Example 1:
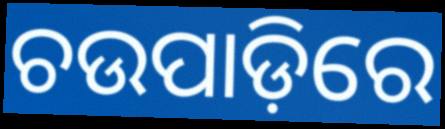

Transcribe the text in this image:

ଚଉପାଡ଼ିରେ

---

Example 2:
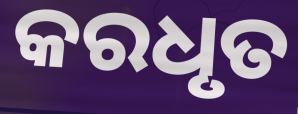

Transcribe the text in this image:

କରଧୃତ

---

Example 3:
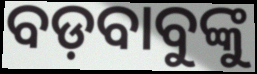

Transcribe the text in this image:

ବଡ଼ବାବୁଙ୍କୁ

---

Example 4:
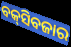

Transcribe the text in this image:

ବକ୍‍ସିବଜାର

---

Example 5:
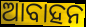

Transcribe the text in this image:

ଆବାହନ